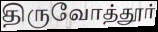
திருவோத்தூர்